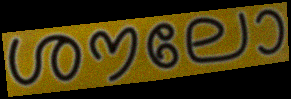
ശൗലോ